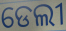
ଡେଲୀ